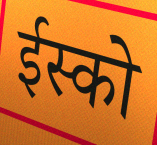
ईस्को